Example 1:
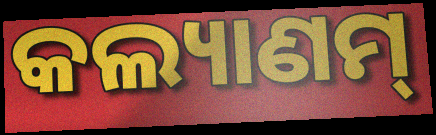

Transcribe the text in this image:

କଲ୍ୟାଣମ୍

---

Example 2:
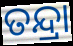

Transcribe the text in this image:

ତନ୍ଦ୍ରା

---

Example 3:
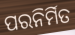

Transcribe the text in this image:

ପରନିର୍ମିତ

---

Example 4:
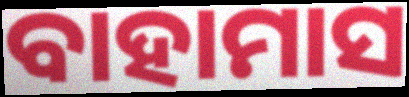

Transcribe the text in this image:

ବାହାମାସ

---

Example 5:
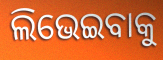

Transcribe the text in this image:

ଲିଭେଇବାକୁ